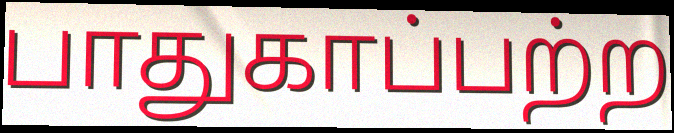
பாதுகாப்பற்ற